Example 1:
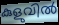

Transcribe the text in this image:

കുളുവിൽ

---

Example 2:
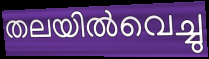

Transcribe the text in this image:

തലയിൽവെച്ചു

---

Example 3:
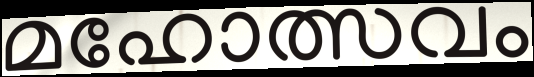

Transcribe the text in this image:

മഹോത്സവം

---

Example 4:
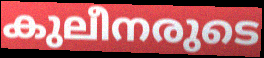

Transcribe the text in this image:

കുലീനരുടെ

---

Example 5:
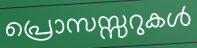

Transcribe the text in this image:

പ്രൊസസ്സറുകൾ